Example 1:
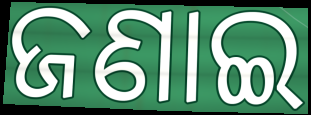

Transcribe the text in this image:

ଜଣାଇ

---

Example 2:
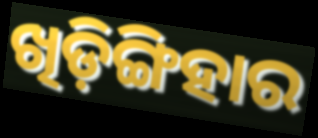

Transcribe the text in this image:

ଖିଡ଼ିଙ୍ଗିହାର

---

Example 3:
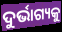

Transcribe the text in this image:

ଦୁର୍ଭାଗ୍ୟକୁ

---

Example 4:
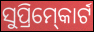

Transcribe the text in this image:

ସୁପ୍ରିମ୍‍କୋର୍ଟ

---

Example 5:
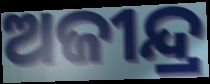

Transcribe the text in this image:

ଅଜୀନ୍ଦ୍ର